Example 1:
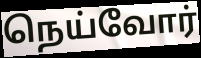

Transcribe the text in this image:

நெய்வோர்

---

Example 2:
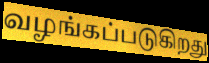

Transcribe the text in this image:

வழங்கப்படுகிறது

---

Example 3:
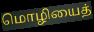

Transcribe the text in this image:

மொழியைத்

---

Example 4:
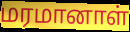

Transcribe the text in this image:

மரமானாள்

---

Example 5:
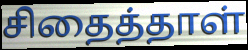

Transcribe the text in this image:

சிதைத்தாள்